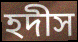
হদীস